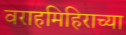
वराहमिहिराच्या